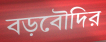
বড়বৌদির